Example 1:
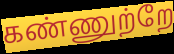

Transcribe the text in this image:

கண்ணுற்றே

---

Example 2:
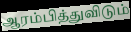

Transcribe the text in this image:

ஆரம்பித்துவிடும்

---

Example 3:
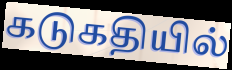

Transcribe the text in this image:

கடுகதியில்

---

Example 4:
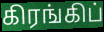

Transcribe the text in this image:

கிரங்கிப்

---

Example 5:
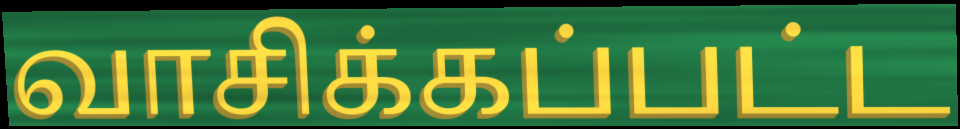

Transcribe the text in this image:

வாசிக்கப்பட்ட